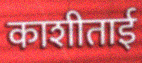
काशीताई